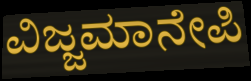
ವಿಜ್ಜಮಾನೇಪಿ